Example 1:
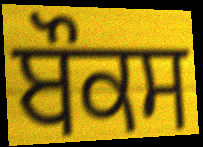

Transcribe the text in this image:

ਬੌਕਸ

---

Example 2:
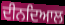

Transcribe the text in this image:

ਦੀਨਦਿਆਲ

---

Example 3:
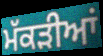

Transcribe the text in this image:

ਮੱਕੜੀਆਂ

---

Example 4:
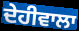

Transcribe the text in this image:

ਦੇਹੀਵਾਲਾ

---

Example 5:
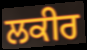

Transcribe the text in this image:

ਲਕੀਰ